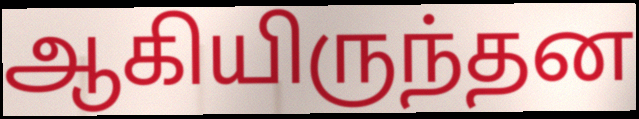
ஆகியிருந்தன